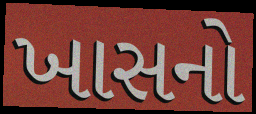
ખાસનો